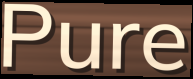
Pure